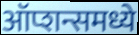
ऑप्शन्समध्ये